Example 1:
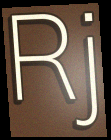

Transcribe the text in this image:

Rj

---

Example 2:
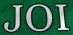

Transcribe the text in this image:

JOI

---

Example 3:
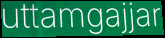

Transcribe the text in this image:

uttamgajjar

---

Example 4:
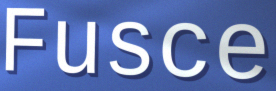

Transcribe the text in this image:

Fusce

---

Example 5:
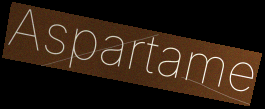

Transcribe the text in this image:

Aspartame